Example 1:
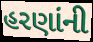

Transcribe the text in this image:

હરણાંની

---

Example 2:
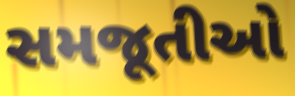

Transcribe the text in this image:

સમજૂતીઓ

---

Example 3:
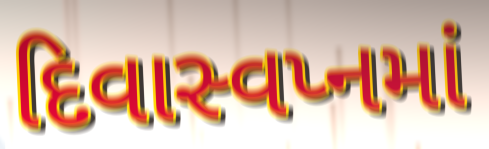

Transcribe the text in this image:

દિવાસ્વપ્નમાં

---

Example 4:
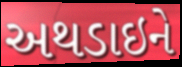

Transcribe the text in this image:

અથડાઇને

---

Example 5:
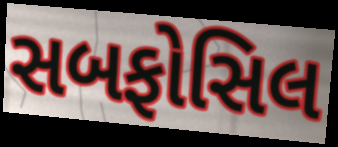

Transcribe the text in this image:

સબફોસિલ